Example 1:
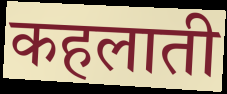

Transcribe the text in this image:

कहलाती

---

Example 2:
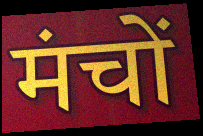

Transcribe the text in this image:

मंचों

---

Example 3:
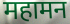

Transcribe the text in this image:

महामन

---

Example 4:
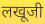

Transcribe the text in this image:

लखूजी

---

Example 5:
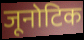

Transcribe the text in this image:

जूनोटिक